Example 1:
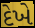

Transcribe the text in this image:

દેખે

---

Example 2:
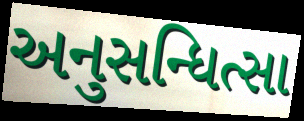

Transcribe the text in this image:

અનુસન્ધિત્સા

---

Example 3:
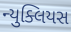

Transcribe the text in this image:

ન્યુક્લિયસ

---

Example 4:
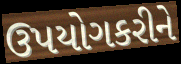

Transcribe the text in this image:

ઉપયોગકરીને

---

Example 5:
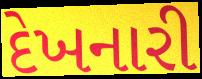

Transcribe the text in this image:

દેખનારી